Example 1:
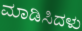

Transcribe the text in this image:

ಮಾಡಿಸಿದಳು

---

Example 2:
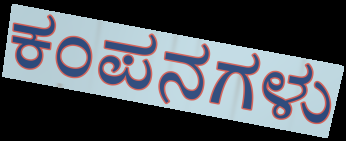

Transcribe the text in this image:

ಕಂಪನಗಳು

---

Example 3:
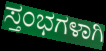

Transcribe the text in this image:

ಸ್ತಂಭಗಳಾಗಿ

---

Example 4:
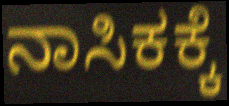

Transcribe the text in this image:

ನಾಸಿಕಕ್ಕೆ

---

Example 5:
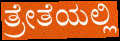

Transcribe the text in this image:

ತ್ರೇತೆಯಲ್ಲಿ